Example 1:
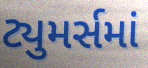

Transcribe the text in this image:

ટ્યુમર્સમાં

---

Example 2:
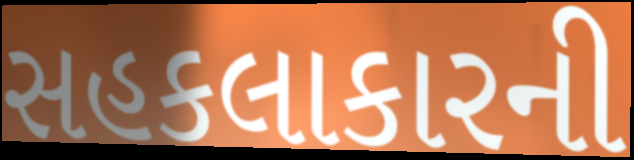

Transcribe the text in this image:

સહકલાકારની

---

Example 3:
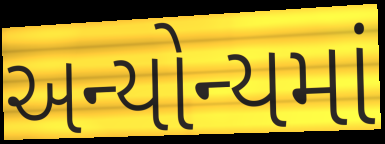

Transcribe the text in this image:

અન્યોન્યમાં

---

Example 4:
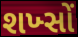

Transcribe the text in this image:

શખ્સોં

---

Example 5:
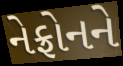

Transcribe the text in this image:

નેફ્રોનને